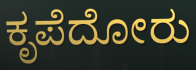
ಕೃಪೆದೋರು